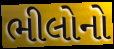
ભીલોનો